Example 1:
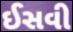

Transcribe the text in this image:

ઈસવી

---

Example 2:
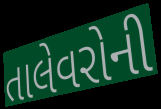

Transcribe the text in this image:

તાલેવરોની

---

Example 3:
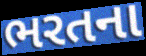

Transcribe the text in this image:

ભરતના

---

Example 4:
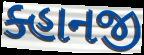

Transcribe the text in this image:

ક્હાનજી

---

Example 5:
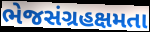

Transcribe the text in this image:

ભેજસંગ્રહક્ષમતા